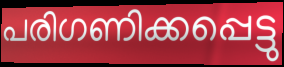
പരിഗണിക്കപ്പെട്ടു